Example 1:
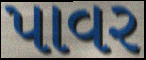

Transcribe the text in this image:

પાવર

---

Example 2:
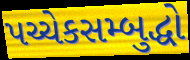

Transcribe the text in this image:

પચ્ચેકસમ્બુદ્ધો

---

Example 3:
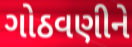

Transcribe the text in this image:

ગોઠવણીને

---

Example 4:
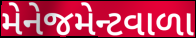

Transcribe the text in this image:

મેનેજમેન્ટવાળા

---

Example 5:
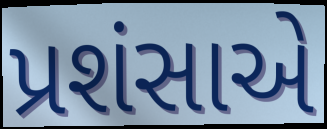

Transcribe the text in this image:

પ્રશંસાએ